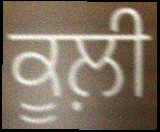
ਕੂਲ਼ੀ